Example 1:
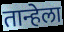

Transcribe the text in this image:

तान्हेला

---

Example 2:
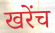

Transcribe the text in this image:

खरेंच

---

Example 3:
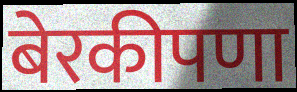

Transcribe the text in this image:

बेरकीपणा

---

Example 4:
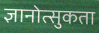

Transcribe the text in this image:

ज्ञानोत्सुकता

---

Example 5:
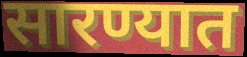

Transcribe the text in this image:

सारण्यात